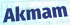
Akmam